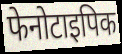
फेनोटाइपिक